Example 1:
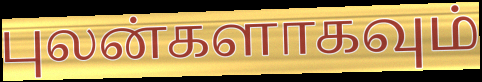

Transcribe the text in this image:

புலன்களாகவும்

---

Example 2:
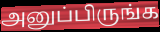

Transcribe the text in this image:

அனுப்பிருங்க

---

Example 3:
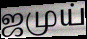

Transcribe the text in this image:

ஜமுய்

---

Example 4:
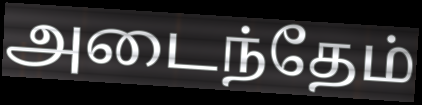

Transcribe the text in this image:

அடைந்தேம்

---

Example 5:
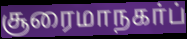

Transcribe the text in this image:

சூரைமாநகர்ப்